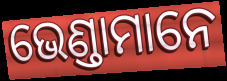
ଭେଣ୍ଡାମାନେ